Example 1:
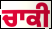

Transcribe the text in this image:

ਚਾਕੀ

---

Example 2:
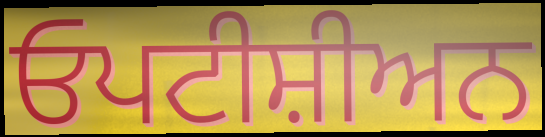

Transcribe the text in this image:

ਓਪਟੀਸ਼ੀਅਨ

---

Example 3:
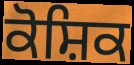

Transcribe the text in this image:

ਕੋਸ਼ਿਕ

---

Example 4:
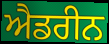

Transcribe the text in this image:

ਐਡਰੀਨ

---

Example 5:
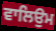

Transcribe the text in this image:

ਵਾਲਿਉਮ